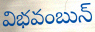
విభవంబున్